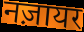
नज़ायर